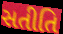
સતીતિ